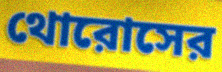
থোরোসের